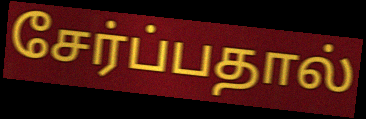
சேர்ப்பதால்